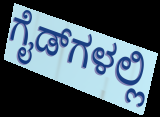
ಗೈಡ್‌ಗಳಲ್ಲಿ